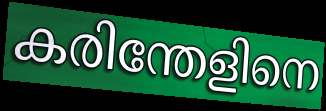
കരിന്തേളിനെ